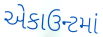
એકાઉન્ટમાં